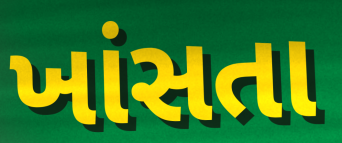
ખાંસતા